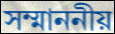
সম্মাননীয়